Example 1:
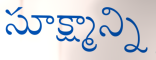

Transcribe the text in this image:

సూక్ష్మాన్ని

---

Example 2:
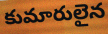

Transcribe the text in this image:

కుమారులైన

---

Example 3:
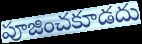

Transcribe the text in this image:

పూజించకూడదు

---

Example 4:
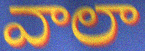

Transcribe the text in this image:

వాలా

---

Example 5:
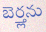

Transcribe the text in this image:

బెర్త్లను